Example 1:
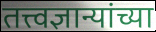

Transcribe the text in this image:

तत्त्वज्ञान्यांच्या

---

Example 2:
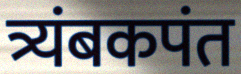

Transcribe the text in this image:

त्र्यंबकपंत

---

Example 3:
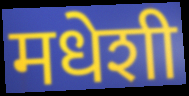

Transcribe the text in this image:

मधेशी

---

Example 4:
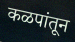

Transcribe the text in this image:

कळपांतून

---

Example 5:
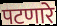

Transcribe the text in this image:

पटणारे